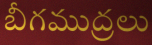
బీగముద్రలు